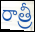
రాత్రీ